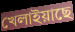
খেলাইয়াছে